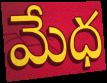
మేధ